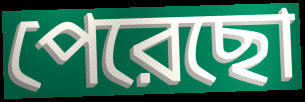
পেরেছো